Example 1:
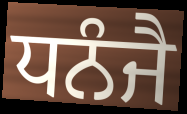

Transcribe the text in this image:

ਧਨੰਜੈ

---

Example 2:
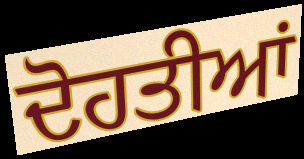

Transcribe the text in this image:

ਦੋਹਤੀਆਂ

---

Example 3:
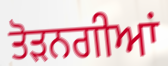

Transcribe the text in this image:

ਤੋੜਨਗੀਆਂ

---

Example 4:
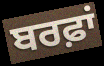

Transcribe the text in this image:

ਬਰਫ਼ਾਂ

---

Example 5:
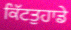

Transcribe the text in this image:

ਕਿੱਟਤੁਹਾਡੇ